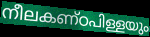
നീലകണ്ഠപിള്ളയും